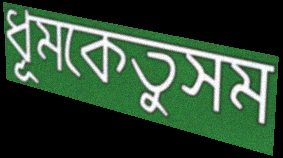
ধূমকেতুসম